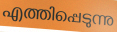
എത്തിപ്പെടുന്നു